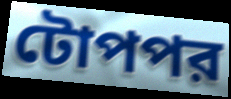
টোপপর